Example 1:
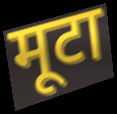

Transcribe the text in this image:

मूटा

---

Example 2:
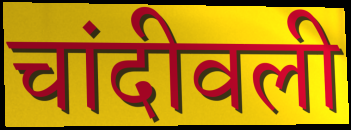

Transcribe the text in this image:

चांदीवली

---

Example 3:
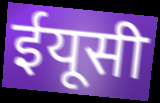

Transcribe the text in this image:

ईयूसी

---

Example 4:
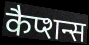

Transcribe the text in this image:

कैप्शन्स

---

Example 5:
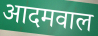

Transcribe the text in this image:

आदमवाल